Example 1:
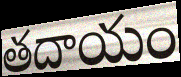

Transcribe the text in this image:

తదాయం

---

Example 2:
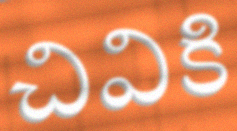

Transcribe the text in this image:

చివికి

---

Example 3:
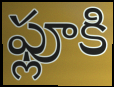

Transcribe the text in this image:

ఫ్లూకి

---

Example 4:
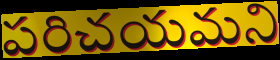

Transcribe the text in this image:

పరిచయమని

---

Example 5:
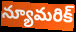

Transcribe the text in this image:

న్యూమరిక్